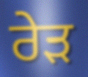
ਰੇੜ